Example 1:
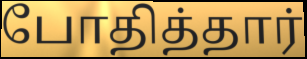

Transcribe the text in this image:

போதித்தார்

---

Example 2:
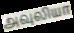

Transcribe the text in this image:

அவுலியா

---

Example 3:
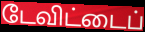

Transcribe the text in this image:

டேவிட்டைப்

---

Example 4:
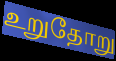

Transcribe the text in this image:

உறுதோறு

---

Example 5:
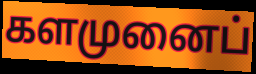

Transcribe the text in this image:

களமுனைப்